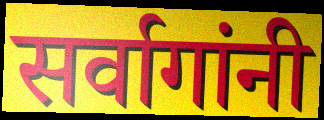
सर्वागांनी